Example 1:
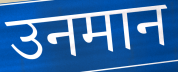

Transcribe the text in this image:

उनमान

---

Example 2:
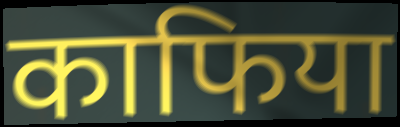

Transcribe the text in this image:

काफिया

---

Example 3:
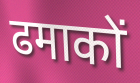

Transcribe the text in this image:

ढमाकों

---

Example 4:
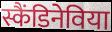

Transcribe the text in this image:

स्कैंडिनेविया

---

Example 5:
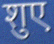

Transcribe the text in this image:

शुए